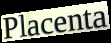
Placenta